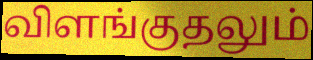
விளங்குதலும்